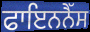
ਫਾਇਨਨੈੱਸ